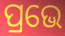
ପ୍ରଭେ